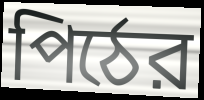
পিঠের